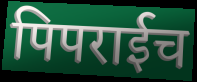
पिपराईच